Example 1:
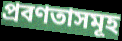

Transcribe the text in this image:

প্রবণতাসমূহ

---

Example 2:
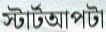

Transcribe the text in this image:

স্টার্টআপটা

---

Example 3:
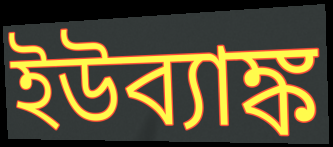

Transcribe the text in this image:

ইউব্যাঙ্ক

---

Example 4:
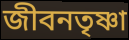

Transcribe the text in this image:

জীবনতৃষ্ণা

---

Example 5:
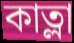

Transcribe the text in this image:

কাত্লা